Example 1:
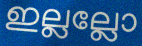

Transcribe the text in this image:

ഇല്ലല്ലോ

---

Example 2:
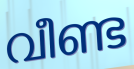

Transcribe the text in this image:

വീണ്ട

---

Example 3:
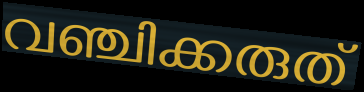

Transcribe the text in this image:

വഞ്ചിക്കരുത്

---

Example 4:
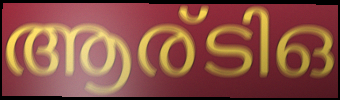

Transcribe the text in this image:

ആര്ടിഒ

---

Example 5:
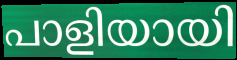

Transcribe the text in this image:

പാളിയായി